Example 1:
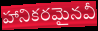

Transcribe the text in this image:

హానికరమైనవీ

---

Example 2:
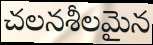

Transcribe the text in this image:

చలనశీలమైన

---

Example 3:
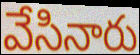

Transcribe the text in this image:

వేసినారు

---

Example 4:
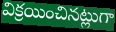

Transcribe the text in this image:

విక్రయించినట్లుగా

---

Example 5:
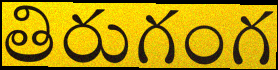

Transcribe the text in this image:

తిరుగంగ